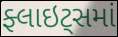
ફ્લાઇટ્સમાં